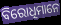
ବିରୋଧିମାନେ